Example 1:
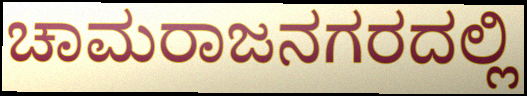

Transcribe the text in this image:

ಚಾಮರಾಜನಗರದಲ್ಲಿ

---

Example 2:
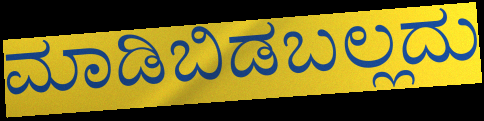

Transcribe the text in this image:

ಮಾಡಿಬಿಡಬಲ್ಲದು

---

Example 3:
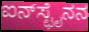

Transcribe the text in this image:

ಐನ್‌ಸ್ಟೈನನ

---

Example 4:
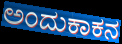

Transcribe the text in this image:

ಅಂದುಕಾಕನ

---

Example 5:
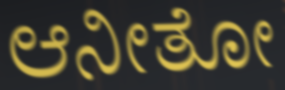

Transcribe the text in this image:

ಆನೀತೋ